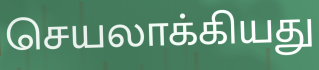
செயலாக்கியது